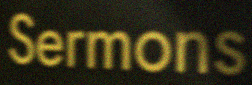
Sermons